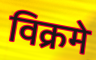
विक्रमे